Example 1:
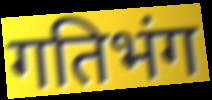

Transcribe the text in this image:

गतिभंग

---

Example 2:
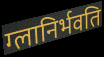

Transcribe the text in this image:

ग्लानिर्भवति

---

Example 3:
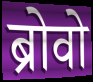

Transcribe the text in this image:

ब्रोवो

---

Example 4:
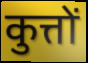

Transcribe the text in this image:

कुत्तों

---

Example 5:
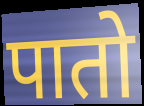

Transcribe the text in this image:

पातो